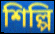
শিল্পি